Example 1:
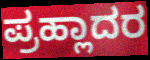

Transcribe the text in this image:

ಪ್ರಹ್ಲಾದರ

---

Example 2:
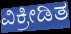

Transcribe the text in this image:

ವಿಕ್ರೀಡಿತ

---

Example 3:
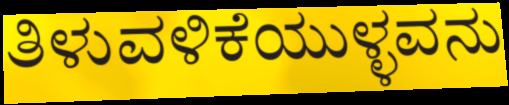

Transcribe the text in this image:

ತಿಳುವಳಿಕೆಯುಳ್ಳವನು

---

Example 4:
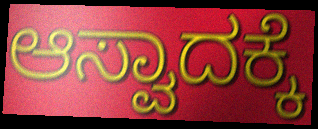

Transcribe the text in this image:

ಆಸ್ವಾದಕ್ಕೆ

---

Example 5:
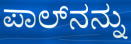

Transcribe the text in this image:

ಪಾಲ್‍ನನ್ನು